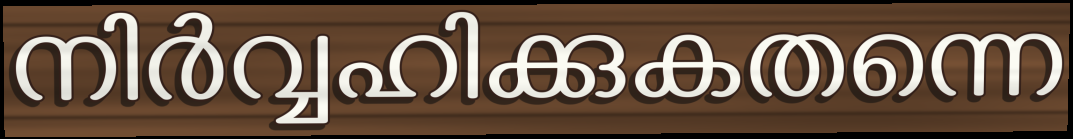
നിർവ്വഹിക്കുകതന്നെ